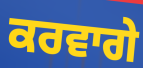
ਕਰਵਾਗੇ